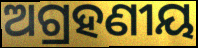
ଅଗ୍ରହଣୀୟ